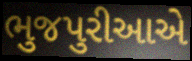
ભુજપુરીઆએ